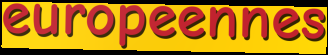
europeennes